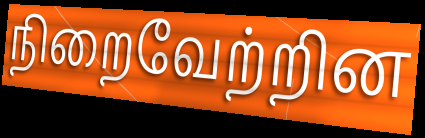
நிறைவேற்றின